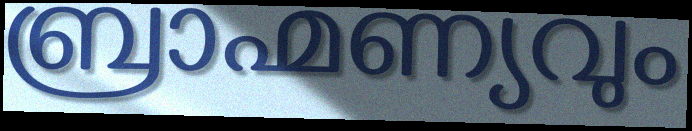
ബ്രാഹ്മണ്യവും